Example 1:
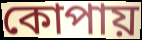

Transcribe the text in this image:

কোপায়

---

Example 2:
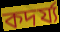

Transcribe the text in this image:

কদর্য্য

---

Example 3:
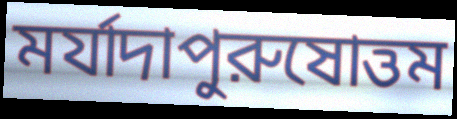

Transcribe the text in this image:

মর্যাদাপুরুষোত্তম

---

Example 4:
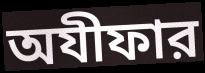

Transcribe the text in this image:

অযীফার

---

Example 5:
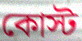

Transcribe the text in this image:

কোস্ট